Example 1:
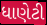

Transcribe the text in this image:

ધાણેટી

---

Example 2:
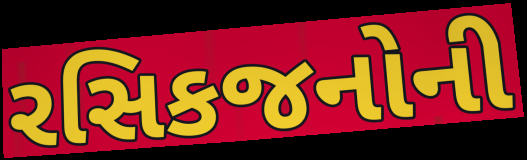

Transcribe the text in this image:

રસિકજનોની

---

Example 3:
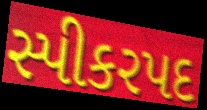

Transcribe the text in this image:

સ્પીકરપદ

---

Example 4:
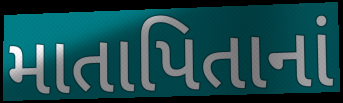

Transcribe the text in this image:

માતાપિતાનાં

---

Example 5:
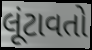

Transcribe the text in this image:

લૂંટાવતો